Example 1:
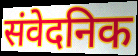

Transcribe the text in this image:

संवेदनिक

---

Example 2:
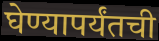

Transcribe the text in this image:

घेण्यापर्यंतची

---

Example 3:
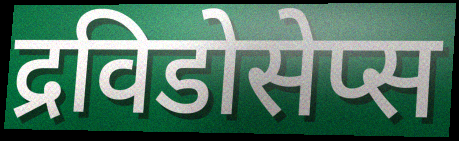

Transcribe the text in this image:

द्रविडोसेप्स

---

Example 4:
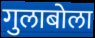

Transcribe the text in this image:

गुलाबोला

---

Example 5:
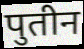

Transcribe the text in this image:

पुतीन